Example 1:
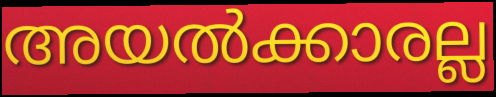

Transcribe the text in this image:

അയൽക്കാരല്ല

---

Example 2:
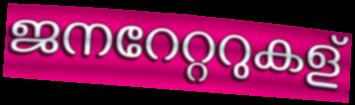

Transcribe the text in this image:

ജനറേറ്ററുകള്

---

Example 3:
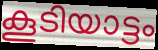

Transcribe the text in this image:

കൂടിയാട്ടം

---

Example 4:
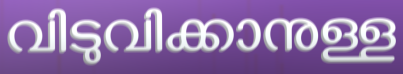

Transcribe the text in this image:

വിടുവിക്കാനുള്ള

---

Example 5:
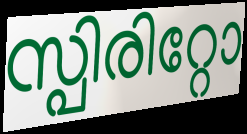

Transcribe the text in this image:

സ്പിരിറ്റോ